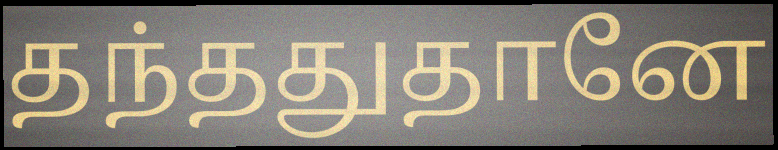
தந்ததுதானே